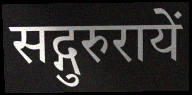
सद्गुरुरायें